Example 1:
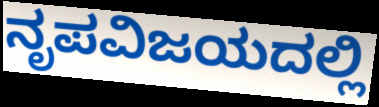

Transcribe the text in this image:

ನೃಪವಿಜಯದಲ್ಲಿ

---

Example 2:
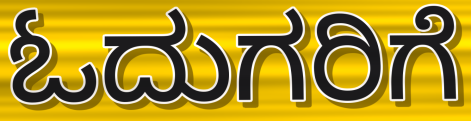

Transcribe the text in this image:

ಓದುಗರಿಗೆ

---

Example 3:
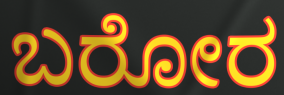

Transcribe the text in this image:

ಬರೋರ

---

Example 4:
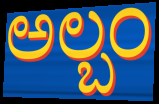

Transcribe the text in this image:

ಅಲ್ಬಂ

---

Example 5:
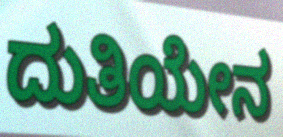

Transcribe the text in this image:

ದುತಿಯೇನ